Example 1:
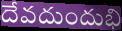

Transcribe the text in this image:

దేవదుందుభి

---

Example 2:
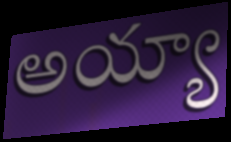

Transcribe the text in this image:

అయ్యా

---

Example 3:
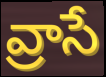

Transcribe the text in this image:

వ్రాసే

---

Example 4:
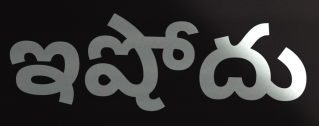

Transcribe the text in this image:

ఇషోదు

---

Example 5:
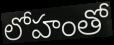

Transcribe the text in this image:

లోహంతో